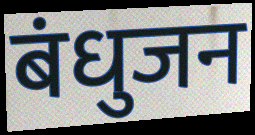
बंधुजन